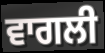
ਵਾਗਲੀ